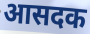
आसदक